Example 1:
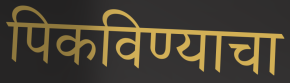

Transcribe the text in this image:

पिकविण्याचा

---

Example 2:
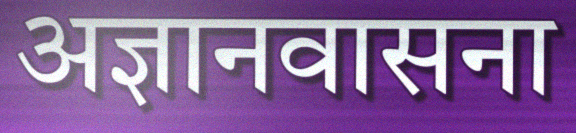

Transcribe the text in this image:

अज्ञानवासना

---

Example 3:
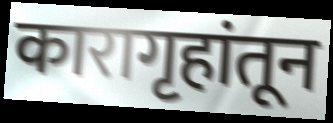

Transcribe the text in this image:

कारागृहांतून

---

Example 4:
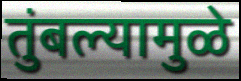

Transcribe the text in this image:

तुंबल्यामुळे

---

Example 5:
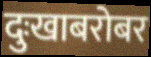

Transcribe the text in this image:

दुःखाबरोबर